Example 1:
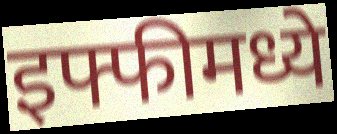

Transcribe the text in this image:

इफ्फीमध्ये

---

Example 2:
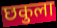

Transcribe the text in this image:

छकुला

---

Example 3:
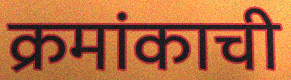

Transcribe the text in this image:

क्रमांकाची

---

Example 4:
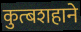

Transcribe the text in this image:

कुत्बशहाने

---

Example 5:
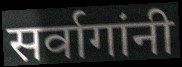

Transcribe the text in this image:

सर्वागांनी